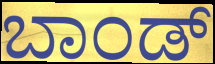
ಬಾಂಡ್